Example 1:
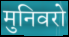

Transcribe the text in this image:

मुनिवरो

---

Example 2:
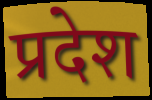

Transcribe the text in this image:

प्रदेश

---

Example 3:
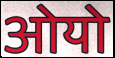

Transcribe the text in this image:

ओयो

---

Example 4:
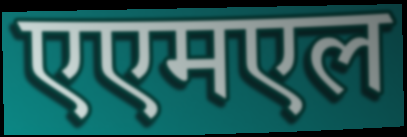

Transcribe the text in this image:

एएमएल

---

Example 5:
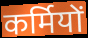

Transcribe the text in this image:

कर्मियों